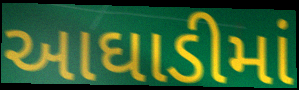
આઘાડીમાં